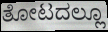
ತೋಟದಲ್ಲೂ